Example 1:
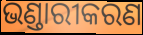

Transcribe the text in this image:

ଭଣ୍ଡାରୀକରଣ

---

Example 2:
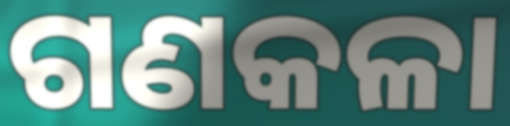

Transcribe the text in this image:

ଗଣକଳା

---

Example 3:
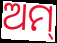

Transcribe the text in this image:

ଅମ୍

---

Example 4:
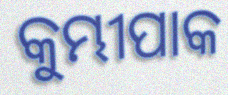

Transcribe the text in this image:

କୁମ୍ଭୀପାକ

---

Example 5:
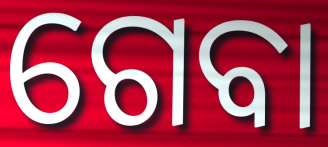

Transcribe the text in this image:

ଗେବା